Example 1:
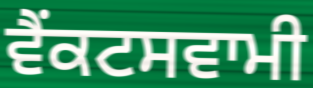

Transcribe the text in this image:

ਵੈਂਕਟਸਵਾਮੀ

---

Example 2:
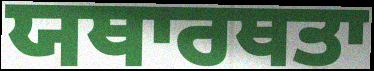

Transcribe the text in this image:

ਯਥਾਰਥਤਾ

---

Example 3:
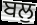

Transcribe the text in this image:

ਬਲੁ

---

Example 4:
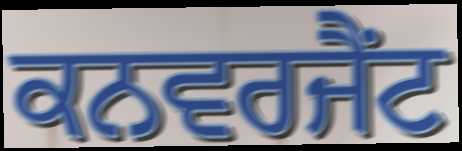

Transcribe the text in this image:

ਕਨਵਰਜੈਂਟ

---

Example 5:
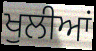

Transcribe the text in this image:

ਖੁਲੀਆਂ